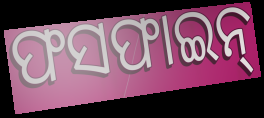
ଫସଫାଇନ୍